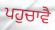
ਪਹੁਚਾਵੈ